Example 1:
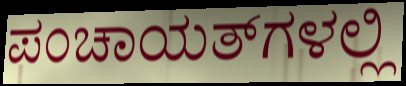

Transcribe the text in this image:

ಪಂಚಾಯತ್‌ಗಳಲ್ಲಿ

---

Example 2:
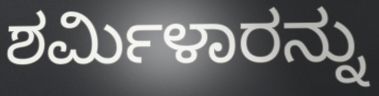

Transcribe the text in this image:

ಶರ್ಮಿಳಾರನ್ನು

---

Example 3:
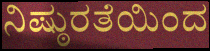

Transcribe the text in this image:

ನಿಷ್ಠುರತೆಯಿಂದ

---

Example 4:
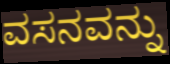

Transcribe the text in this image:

ವಸನವನ್ನು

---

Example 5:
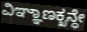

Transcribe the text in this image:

ವಿಞ್ಞಾಣಕ್ಖನ್ಧೇ